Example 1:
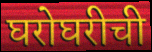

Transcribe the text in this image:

घरोघरीची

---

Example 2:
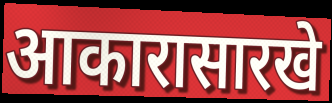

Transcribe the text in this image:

आकारासारखे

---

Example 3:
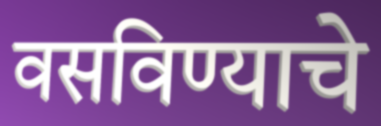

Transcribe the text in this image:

वसविण्याचे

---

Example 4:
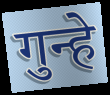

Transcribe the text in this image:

गुन्हे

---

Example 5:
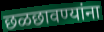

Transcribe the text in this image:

छळछावण्यांना